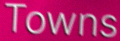
Towns